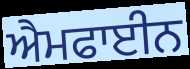
ਐਮਫਾਈਨ